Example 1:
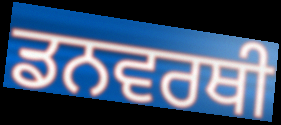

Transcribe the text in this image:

ਡਨਵਰਥੀ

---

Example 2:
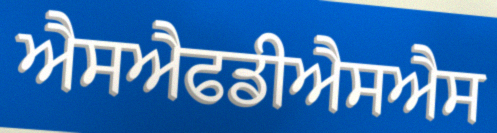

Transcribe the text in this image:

ਐਸਐਫਡੀਐਸਐਸ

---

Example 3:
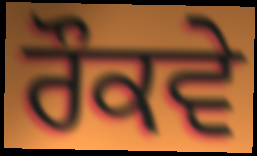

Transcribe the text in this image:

ਰੌਕਵੇ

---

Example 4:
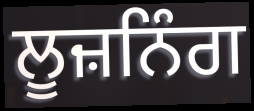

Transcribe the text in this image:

ਲੂਜ਼ਨਿੰਗ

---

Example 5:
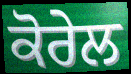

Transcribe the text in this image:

ਕੋਰੇਲ